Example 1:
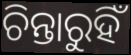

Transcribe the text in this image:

ଚିନ୍ତାରୁହିଁ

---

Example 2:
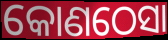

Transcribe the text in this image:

କୋଣଠେସା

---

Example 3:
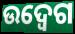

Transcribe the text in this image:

ଉଦ୍ବେଗ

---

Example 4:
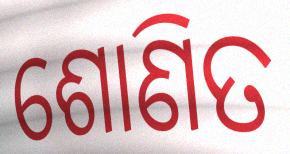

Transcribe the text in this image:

ଶୋଣିତ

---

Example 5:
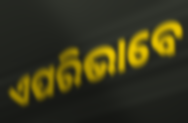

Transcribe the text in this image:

ଏପରିଭାବେ